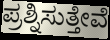
ಪ್ರಶ್ನಿಸುತ್ತೇವೆ